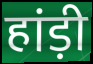
हांड़ी